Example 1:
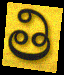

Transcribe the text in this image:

తి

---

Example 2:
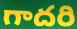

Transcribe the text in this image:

గాదరి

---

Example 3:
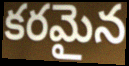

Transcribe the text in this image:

కరమైన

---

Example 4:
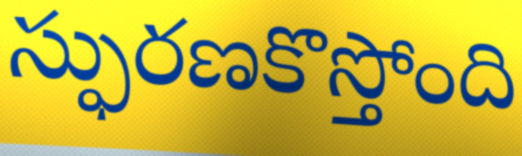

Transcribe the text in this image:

స్ఫురణకొస్తోంది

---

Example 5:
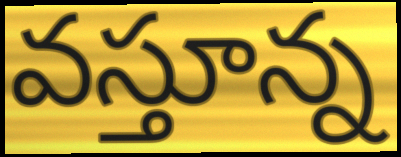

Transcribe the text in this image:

వస్తూన్న